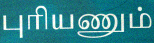
புரியணும்